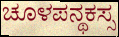
ಚೂಳಪನ್ಥಕಸ್ಸ